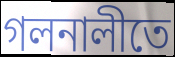
গলনালীতে